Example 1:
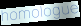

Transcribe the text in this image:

homologue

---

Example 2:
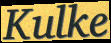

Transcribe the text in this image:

Kulke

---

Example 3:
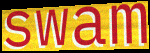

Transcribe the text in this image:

swam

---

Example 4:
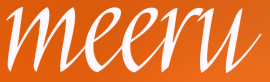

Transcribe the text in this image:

meeru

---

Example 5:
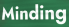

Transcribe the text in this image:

Minding